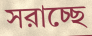
সরাচ্ছে